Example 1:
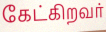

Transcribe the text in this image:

கேட்கிறவர்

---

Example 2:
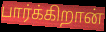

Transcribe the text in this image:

பார்க்கிறான்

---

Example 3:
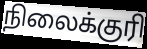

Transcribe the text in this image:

நிலைக்குரி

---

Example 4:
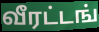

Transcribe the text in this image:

வீரட்டங்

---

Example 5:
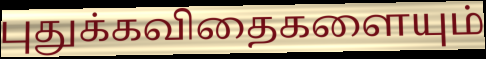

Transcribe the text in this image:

புதுக்கவிதைகளையும்